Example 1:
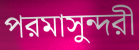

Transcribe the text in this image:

পরমাসুন্দরী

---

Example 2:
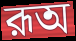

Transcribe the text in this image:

রূঅ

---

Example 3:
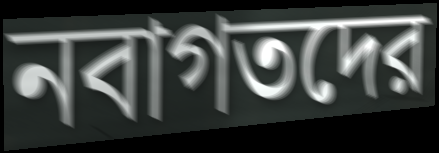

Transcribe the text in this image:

নবাগতদের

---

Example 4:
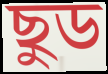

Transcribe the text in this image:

ছুড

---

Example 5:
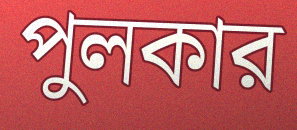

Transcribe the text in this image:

পুলকার